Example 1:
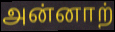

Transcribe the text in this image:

அன்னாற்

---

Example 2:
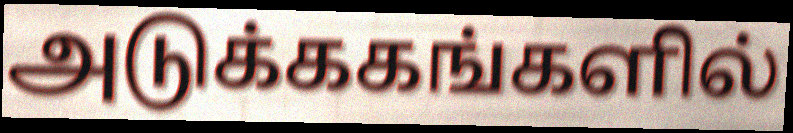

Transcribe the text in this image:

அடுக்ககங்களில்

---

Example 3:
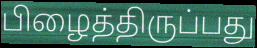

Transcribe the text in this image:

பிழைத்திருப்பது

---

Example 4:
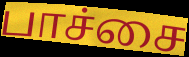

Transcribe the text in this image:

பாச்சை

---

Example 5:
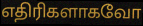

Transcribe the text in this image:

எதிரிகளாகவோ